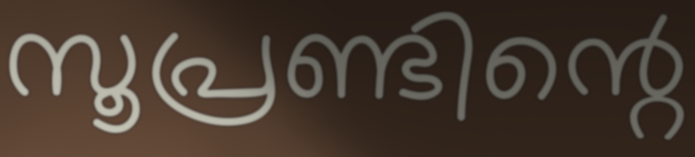
സൂപ്രണ്ടിന്റെ